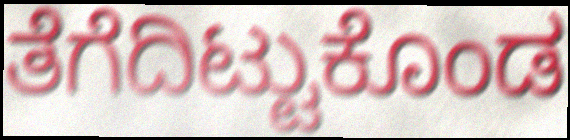
ತೆಗೆದಿಟ್ಟುಕೊಂಡ